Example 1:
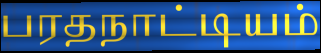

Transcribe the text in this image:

பரதநாட்டியம்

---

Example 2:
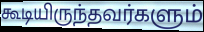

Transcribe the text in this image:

கூடியிருந்தவர்களும்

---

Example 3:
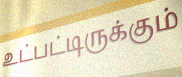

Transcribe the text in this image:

உட்பட்டிருக்கும்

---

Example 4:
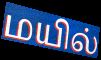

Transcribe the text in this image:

மயில்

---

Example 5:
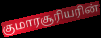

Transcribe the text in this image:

குமாரசூரியரின்